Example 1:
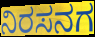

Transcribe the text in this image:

ನಿರಸನಗ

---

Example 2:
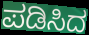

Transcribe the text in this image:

ಪಡಿಸಿದ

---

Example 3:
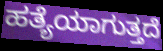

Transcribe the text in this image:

ಹತ್ಯೆಯಾಗುತ್ತದೆ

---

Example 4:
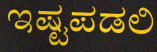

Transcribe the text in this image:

ಇಷ್ಟಪಡಲಿ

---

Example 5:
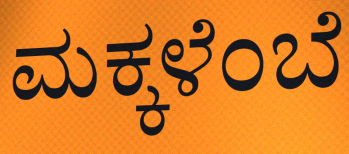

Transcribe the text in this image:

ಮಕ್ಕಳೆಂಬೆ